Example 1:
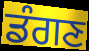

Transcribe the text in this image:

ਡੰਗਣ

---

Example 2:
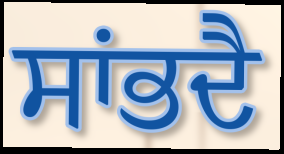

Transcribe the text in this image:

ਸਾਂਭਦੈ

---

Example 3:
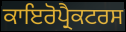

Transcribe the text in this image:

ਕਾਇਰੋਪ੍ਰੈਕਟਰਸ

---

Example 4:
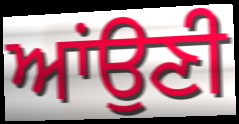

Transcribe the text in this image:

ਆਂਉਣੀ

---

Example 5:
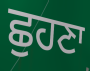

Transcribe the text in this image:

ਛੁਹਣਾ